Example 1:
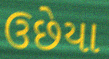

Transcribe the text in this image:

ઉછેયા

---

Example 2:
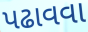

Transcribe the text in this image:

પઢાવવા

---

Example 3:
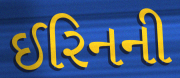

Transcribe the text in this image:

ઈરિનની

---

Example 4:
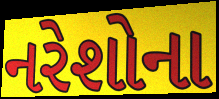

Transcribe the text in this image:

નરેશોના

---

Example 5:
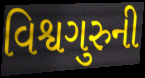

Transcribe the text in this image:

વિશ્વગુરુની